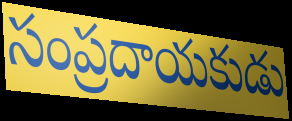
సంప్రదాయకుడు